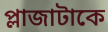
প্লাজাটাকে